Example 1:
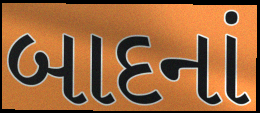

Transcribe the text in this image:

બાદનાં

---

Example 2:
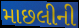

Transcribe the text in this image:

માછલીની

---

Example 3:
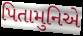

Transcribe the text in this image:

પિતામુનિએ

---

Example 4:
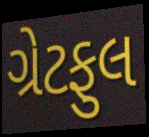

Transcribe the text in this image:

ગ્રેટફુલ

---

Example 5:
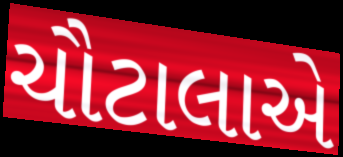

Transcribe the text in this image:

ચૌટાલાએ